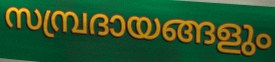
സമ്പ്രദായങ്ങളും